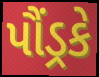
પૌંડ્રકે